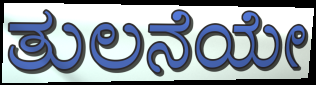
ತುಲನೆಯೇ